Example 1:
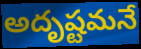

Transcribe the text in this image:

అదృష్టమనే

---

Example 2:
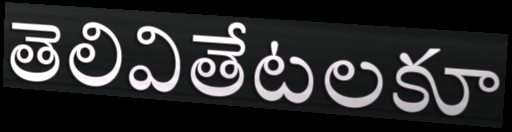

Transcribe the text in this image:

తెలివితేటలకూ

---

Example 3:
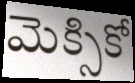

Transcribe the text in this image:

మెక్సికో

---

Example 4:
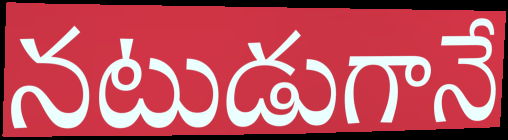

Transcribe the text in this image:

నటుడుగానే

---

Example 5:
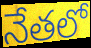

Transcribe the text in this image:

నేతలో